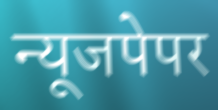
न्यूजपेपर